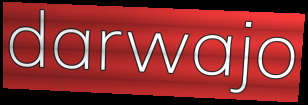
darwajo